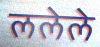
ललेले